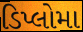
ડિપ્લોમા